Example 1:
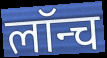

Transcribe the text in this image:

लॉन्‍च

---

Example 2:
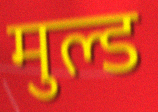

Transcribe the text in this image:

मुल्ड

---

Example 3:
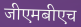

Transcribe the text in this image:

जीएमबीएच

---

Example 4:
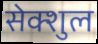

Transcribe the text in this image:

सेक्शुल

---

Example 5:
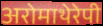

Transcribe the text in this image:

अरोमाथेरेपी